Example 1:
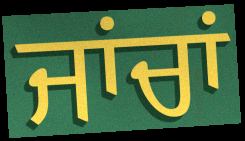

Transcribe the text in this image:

ਜਾਂਚਾਂ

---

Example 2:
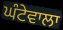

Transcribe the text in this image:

ਘੰਟੇਵਾਲਾ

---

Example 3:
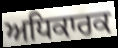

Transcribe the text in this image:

ਅਧਿਕਾਰਕ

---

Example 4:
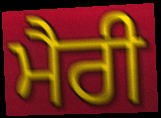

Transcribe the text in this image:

ਮੈਰੀ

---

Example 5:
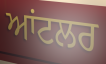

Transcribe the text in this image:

ਆਂਟਲਰ